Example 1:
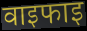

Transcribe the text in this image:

वाइफाइ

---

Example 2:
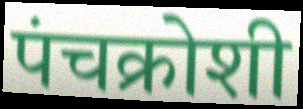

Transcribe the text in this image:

पंचक्रोशी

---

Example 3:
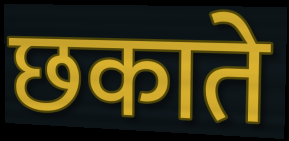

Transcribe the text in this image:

छकाते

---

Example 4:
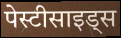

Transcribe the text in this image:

पेस्टीसाइड्स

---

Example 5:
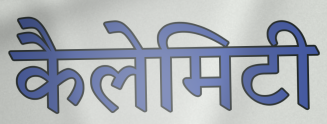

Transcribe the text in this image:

कैलेमिटी